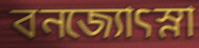
বনজ্যোৎস্না